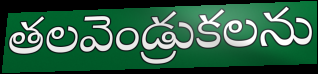
తలవెండ్రుకలను